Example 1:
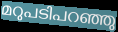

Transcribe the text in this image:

മറുപടിപറഞ്ഞു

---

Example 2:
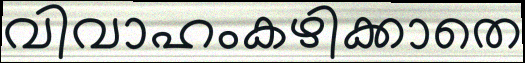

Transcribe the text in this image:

വിവാഹംകഴിക്കാതെ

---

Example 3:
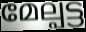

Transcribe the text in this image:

മേല്പട്ട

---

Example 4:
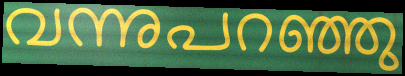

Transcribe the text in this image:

വന്നുപറഞ്ഞു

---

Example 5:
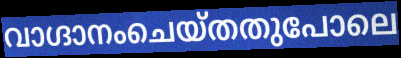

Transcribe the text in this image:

വാഗ്ദാനംചെയ്തതുപോലെ